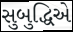
સુબુદ્ધિએ